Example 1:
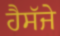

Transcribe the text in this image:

ਹੈਸੱਜੇ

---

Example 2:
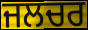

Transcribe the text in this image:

ਜਲਚਰ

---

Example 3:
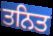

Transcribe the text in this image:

ਤਨਿਤ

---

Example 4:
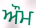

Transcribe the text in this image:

ਔਮ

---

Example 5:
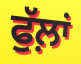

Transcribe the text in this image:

ਫੁੱਲ਼ਾਂ